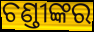
ଚଣ୍ଡୀଙ୍କର